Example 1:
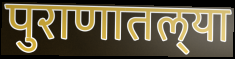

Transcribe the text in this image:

पुराणातल्या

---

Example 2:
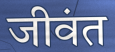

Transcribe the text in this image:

जीवंत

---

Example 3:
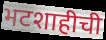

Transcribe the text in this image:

भटशाहीची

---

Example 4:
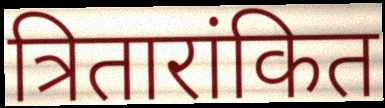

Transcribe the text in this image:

त्रितारांकित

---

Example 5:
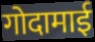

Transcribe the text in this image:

गोदामाई